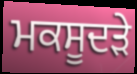
ਮਕਸੂਦੜੇ